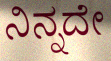
ನಿನ್ನದೇ